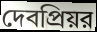
দেবপ্রিয়র